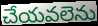
చేయవలెను